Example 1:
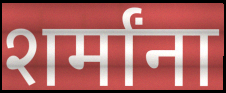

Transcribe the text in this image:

शर्मांना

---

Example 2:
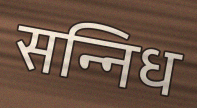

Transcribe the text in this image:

सन्निध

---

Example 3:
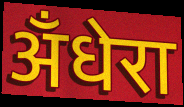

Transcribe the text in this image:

अँधेरा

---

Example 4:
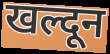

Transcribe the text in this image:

खल्दून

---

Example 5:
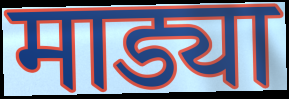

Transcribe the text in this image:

माड्या